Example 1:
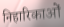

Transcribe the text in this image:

निहारिकाओं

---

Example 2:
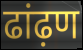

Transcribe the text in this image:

ढांढ़ण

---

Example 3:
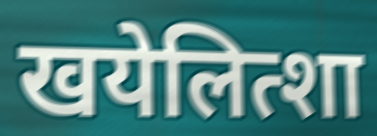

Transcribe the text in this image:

खयेलित्शा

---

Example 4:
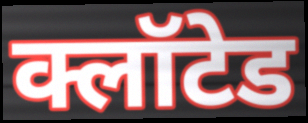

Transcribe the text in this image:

क्लॉटेड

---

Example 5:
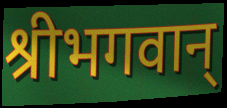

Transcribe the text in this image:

श्रीभगवान्